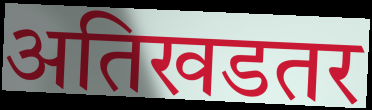
अतिखडतर